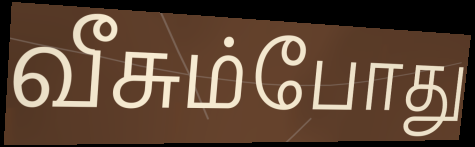
வீசும்போது